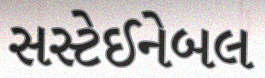
સસ્ટેઈનેબલ